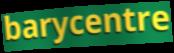
barycentre